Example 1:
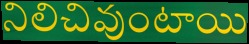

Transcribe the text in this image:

నిలిచివుంటాయి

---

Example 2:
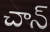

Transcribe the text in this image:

చాన్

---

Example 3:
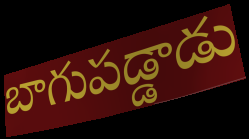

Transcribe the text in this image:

బాగుపడ్డాడు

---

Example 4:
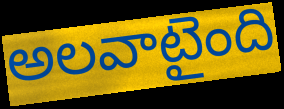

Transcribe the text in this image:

అలవాటైంది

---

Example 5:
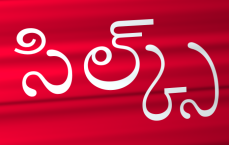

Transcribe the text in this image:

సిల్క్స్